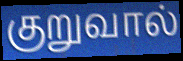
குறுவால்